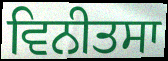
ਵਿਨੀਤਸਾ